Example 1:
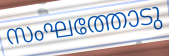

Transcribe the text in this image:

സംഘത്തോടു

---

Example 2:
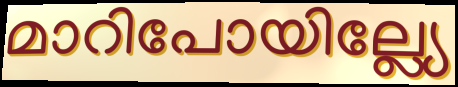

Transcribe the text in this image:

മാറിപോയില്ല്യേ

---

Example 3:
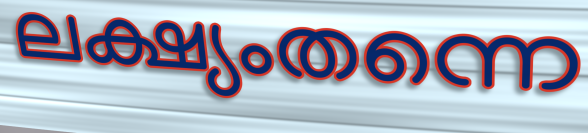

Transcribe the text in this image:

ലക്ഷ്യംതന്നെ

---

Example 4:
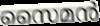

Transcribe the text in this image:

സൈമൻ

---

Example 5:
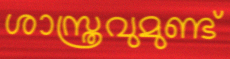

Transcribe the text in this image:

ശാസ്ത്രവുമുണ്ട്